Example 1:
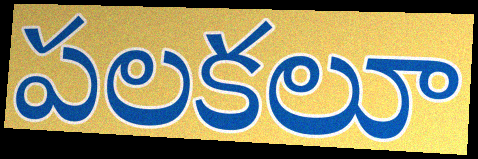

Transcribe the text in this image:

పలకలూ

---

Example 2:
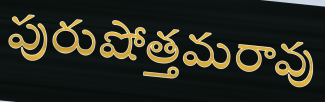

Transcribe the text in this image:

పురుషోత్తమరావు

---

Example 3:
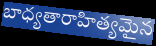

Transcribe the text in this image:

బాధ్యతారాహిత్యమైన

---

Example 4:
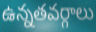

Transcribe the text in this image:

ఉన్నతవర్గాలు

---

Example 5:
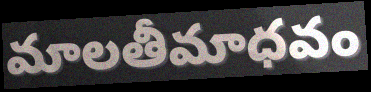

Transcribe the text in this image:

మాలతీమాధవం